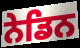
ਨੇਡਿਨ